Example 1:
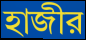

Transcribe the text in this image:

হাজীর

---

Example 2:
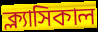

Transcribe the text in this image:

ক্ল্যাসিকাল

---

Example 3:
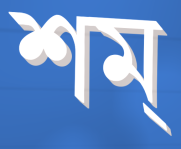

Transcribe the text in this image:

শম্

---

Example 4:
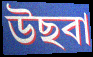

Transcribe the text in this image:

উছবা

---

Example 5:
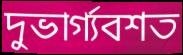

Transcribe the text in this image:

দুভার্গ্যবশত